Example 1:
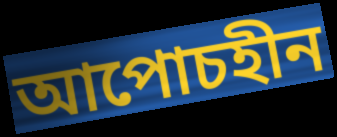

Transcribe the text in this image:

আপোচহীন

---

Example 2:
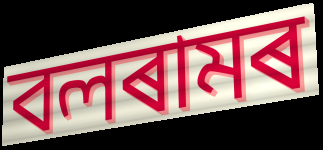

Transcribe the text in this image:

বলৰামৰ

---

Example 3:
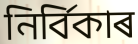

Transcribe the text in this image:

নিৰ্বিকাৰ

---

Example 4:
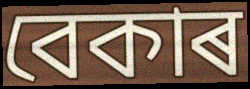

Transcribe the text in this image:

বেকাৰ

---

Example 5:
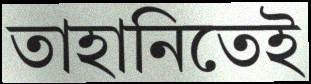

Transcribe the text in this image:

তাহানিতেই